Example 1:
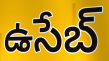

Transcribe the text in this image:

ఉసేబ్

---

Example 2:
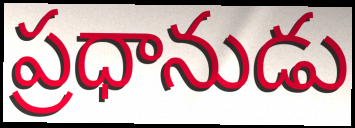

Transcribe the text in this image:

ప్రధానుడు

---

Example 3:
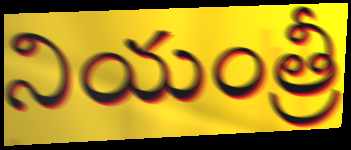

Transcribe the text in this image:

నియంత్రీ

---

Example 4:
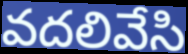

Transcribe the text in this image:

వదలివేసి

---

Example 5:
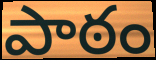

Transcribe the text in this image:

పాఠం